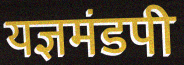
यज्ञमंडपी